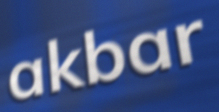
akbar